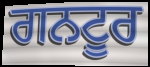
ਗਨਟੂਰ